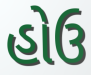
હોઉ